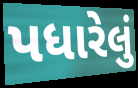
પધારેલું